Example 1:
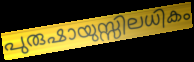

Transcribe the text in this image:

പുരുഷായുസ്സിലധികം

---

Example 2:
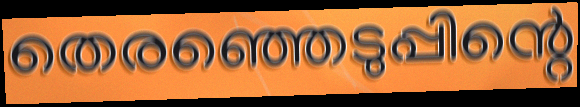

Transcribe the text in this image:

തെരഞ്ഞെടുപ്പിന്റെ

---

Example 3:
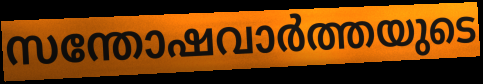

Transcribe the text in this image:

സന്തോഷവാർത്തയുടെ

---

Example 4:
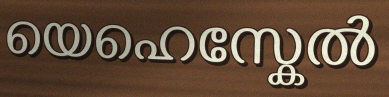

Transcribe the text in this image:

യെഹെസ്കേൽ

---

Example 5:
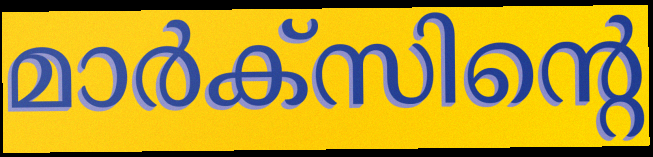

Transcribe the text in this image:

മാർക്സിന്റെ